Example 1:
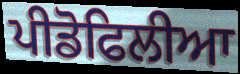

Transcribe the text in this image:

ਪੀਡੋਫਿਲੀਆ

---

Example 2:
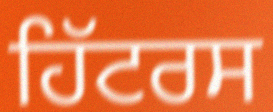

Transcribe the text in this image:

ਹਿੱਟਰਸ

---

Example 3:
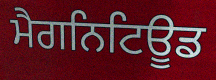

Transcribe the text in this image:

ਮੈਗਨਿਟਿਊਡ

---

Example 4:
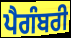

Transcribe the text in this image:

ਪੈਗੰਬਰੀ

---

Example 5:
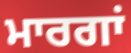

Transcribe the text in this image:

ਮਾਰਗਾਂ